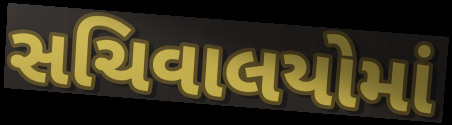
સચિવાલયોમાં